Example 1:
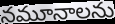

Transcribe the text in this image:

నమూనాలను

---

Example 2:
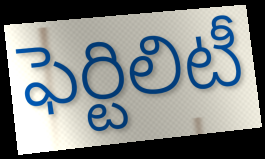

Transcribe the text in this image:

ఫెర్టిలిటీ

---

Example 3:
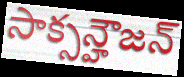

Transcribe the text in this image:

సాక్సన్హౌజన్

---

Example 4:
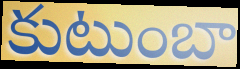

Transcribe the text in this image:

కుటుంబా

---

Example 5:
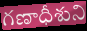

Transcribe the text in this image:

గణాధీశుని